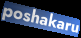
poshakaru